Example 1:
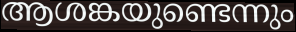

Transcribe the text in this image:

ആശങ്കയുണ്ടെന്നും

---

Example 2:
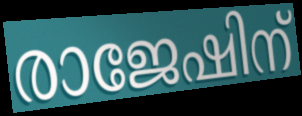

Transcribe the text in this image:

രാജേഷിന്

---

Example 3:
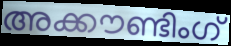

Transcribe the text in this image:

അക്കൗണ്ടിംഗ്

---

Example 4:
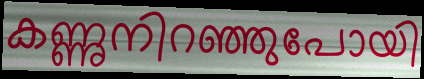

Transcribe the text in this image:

കണ്ണുനിറഞ്ഞുപോയി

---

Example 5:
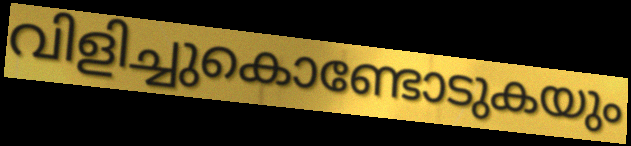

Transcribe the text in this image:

വിളിച്ചുകൊണ്ടോടുകയും